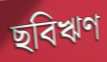
ছবিঋণ